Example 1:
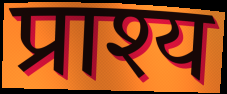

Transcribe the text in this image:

प्राश्य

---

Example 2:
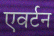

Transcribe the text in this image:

एवर्टन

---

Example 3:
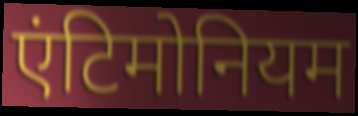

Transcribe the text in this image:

एंटिमोनियम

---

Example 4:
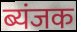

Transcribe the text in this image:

ब्यंजक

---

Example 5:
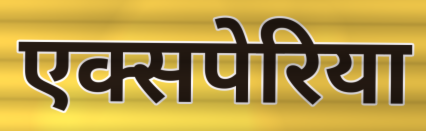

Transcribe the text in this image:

एक्सपेरिया